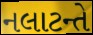
નલાટન્તે